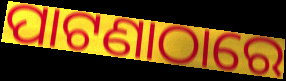
ପାଟଣାଠାରେ